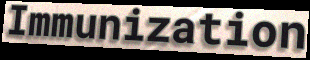
Immunization